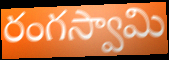
రంగస్వామి